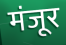
मंजूर